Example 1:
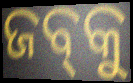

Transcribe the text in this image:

ଜବ୍‍କୁ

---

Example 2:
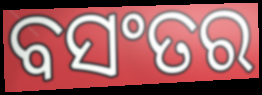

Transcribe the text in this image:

ବସଂତର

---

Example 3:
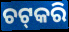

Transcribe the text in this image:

ଚଟ୍‌କରି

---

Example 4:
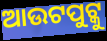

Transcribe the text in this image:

ଆଉଟପୁଟ୍କୁ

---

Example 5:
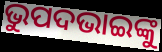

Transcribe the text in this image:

ଭୁପଦଭାଇଙ୍କୁ